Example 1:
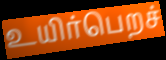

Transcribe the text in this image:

உயிர்பெறச்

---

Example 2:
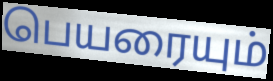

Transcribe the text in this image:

பெயரையும்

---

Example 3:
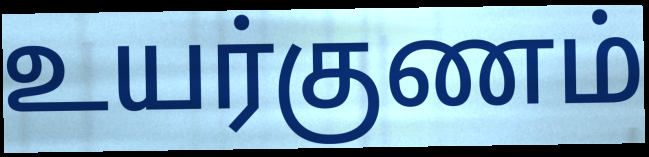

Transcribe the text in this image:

உயர்குணம்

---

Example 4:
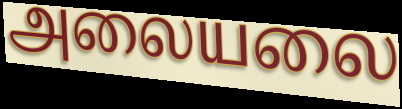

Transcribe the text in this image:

அலையலை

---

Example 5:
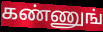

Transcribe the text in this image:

கண்ணுங்